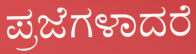
ಪ್ರಜೆಗಳಾದರೆ